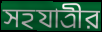
সহযাত্রীর